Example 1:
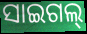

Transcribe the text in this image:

ସାଇଗଲ୍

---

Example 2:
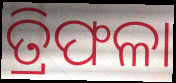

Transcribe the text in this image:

ତ୍ରିଫଳା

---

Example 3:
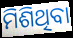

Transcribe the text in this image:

ମିଶିଥିବା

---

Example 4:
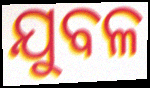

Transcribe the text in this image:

ଯୁବଳ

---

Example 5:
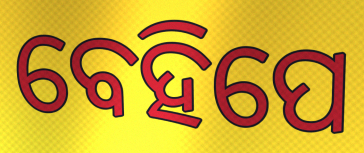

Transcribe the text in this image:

ବେହିପେ